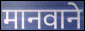
मानवाने